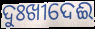
ଦୁଃଖୀଦେଈ